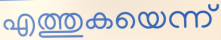
എത്തുകയെന്ന്